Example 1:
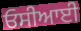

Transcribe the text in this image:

ਓਸੀਆਈ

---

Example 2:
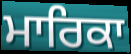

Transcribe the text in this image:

ਮਾਰਿਕਾ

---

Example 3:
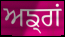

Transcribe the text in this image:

ਅਙ੍ਗਂ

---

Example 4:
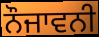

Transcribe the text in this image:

ਨੌਜਾਵਨੀ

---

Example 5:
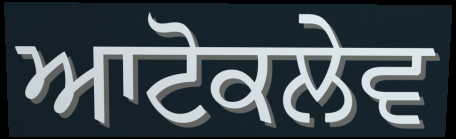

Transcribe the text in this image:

ਆਟੋਕਲੇਵ